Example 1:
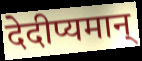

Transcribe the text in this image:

देदीप्यमान्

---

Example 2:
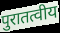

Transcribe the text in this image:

पुरातत्वीय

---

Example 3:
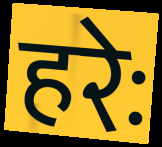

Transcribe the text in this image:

हरेः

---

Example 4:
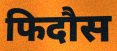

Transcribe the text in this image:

फिदौस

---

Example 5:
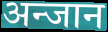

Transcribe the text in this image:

अन्जान